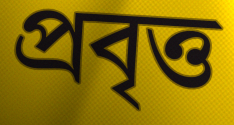
প্রবৃত্ত